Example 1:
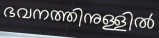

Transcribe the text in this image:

ഭവനത്തിനുള്ളിൽ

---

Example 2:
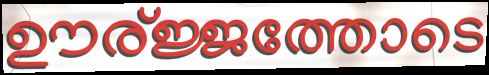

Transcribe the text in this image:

ഊര്ജ്ജത്തോടെ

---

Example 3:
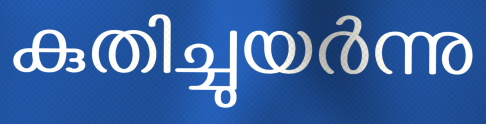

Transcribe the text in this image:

കുതിച്ചുയർന്നു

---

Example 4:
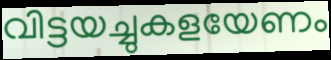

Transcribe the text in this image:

വിട്ടയച്ചുകളയേണം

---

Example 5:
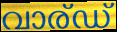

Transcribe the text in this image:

വാര്ഡ്